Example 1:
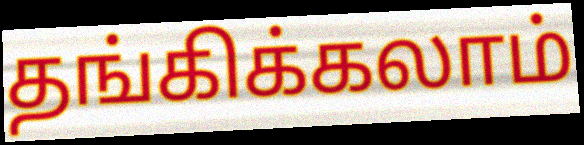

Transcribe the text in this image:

தங்கிக்கலாம்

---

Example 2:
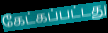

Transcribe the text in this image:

கேட்கப்பட்டது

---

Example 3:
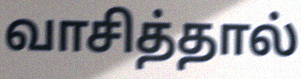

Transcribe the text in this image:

வாசித்தால்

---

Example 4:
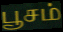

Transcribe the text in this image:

பூசம்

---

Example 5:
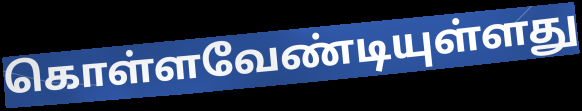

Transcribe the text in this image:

கொள்ளவேண்டியுள்ளது